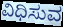
ವಿಧಿಸುವ